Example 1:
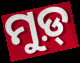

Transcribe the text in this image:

ମୁଡ଼୍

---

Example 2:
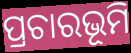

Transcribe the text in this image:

ପ୍ରଚାରଭୂମି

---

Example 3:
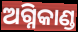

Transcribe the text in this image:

ଅଗ୍ନିକାଣ୍ଡ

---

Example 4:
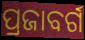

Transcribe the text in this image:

ପ୍ରଜାବର୍ଗ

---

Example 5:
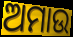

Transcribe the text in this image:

ଅମାଉ